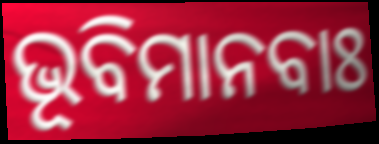
ଭୂବିମାନବାଃ